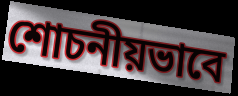
শোচনীয়ভাবে